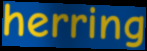
herring